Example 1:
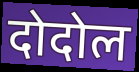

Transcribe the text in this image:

दोदोल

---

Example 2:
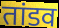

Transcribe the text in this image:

तांडव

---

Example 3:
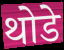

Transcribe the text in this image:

थोडे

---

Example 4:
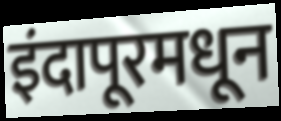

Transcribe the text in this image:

इंदापूरमधून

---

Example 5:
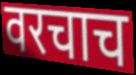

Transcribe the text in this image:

वरचाच